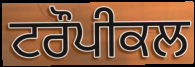
ਟਰੌਪੀਕਲ